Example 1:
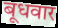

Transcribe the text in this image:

बूधवार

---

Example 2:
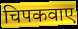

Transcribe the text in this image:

चिपकवाए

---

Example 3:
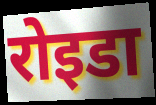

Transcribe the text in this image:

रोइडा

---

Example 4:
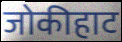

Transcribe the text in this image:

जोकीहाट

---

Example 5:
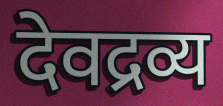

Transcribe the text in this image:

देवद्रव्य